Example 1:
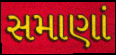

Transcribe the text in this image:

સમાણાં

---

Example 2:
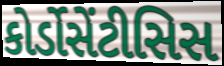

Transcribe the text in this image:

કોર્ડોસેંટીસિસ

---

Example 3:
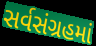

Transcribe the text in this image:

સર્વસંગ્રહમાં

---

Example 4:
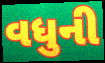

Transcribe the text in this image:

વધુની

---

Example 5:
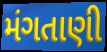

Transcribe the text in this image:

મંગતાણી